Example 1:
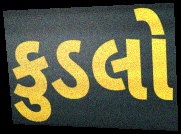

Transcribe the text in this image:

કુડલો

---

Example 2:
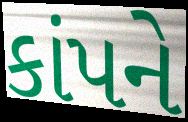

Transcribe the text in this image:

કાંપને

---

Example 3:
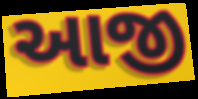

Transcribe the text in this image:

આજી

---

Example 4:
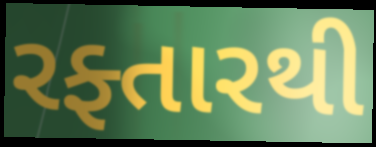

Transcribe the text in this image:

રફ્તારથી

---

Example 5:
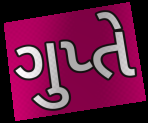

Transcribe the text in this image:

ગુપ્તે